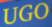
UGO